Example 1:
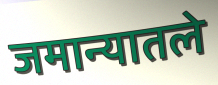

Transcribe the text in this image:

जमान्यातले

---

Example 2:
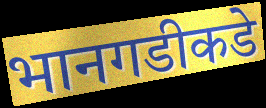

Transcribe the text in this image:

भानगडीकडे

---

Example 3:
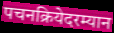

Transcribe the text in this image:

पचनक्रियेदरम्यान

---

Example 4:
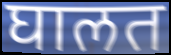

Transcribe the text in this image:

घालत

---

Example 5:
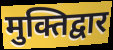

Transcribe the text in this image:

मुक्तिद्वार